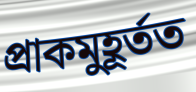
প্ৰাকমুহূৰ্তত